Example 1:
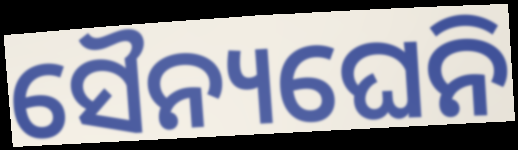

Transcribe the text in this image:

ସୈନ୍ୟଘେନି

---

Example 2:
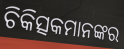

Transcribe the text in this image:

ଚିକିତ୍ସକମାନଙ୍କର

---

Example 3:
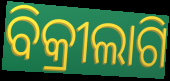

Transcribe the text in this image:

ବିକ୍ରୀଲାଗି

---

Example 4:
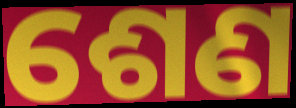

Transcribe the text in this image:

ଶେଣ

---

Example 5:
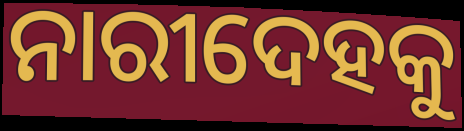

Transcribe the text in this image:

ନାରୀଦେହକୁ